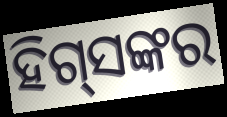
ହିଗ୍‌ସଙ୍କର